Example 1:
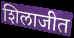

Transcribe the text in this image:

शिलाजीत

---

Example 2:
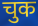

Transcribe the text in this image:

चुक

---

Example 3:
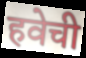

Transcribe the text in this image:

हवेची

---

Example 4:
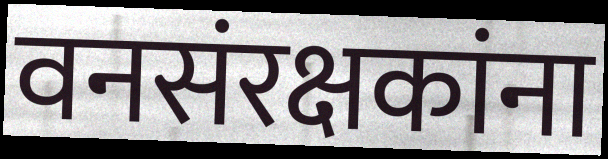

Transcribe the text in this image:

वनसंरक्षकांना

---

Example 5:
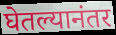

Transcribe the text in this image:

घेतल्यानंतर